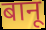
बानू